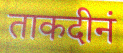
ताकदीनं